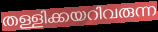
തള്ളിക്കയറിവരുന്ന